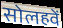
सोलहवें